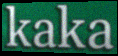
kaka